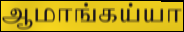
ஆமாங்கய்யா